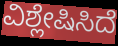
ವಿಶ್ಲೇಷಿಸಿದೆ